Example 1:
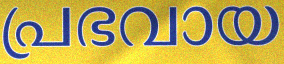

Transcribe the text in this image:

പ്രഭവായ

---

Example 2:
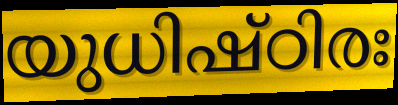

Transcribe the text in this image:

യുധിഷ്ഠിരഃ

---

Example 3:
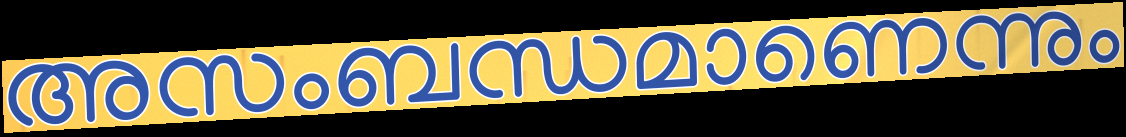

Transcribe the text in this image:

അസംബന്ധമാണെന്നും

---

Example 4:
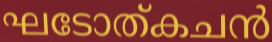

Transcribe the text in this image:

ഘടോത്കചൻ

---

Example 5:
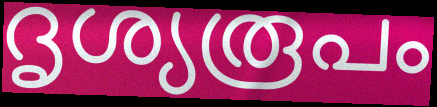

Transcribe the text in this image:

ദൃശ്യരൂപം